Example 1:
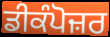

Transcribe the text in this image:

ਡੀਕੰਪੋਜ਼ਰ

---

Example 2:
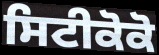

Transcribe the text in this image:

ਸਿਟੀਕੋਕੋ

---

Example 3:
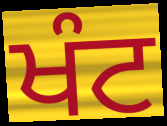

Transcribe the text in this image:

ਖੰਟ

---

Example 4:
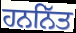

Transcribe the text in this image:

ਹਨਨਿੱਤ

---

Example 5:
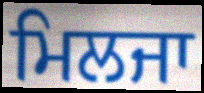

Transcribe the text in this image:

ਮਿਲਜਾ